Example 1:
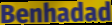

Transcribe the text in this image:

Benhadad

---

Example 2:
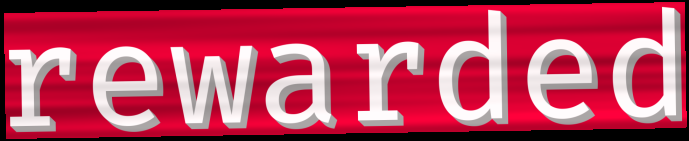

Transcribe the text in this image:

rewarded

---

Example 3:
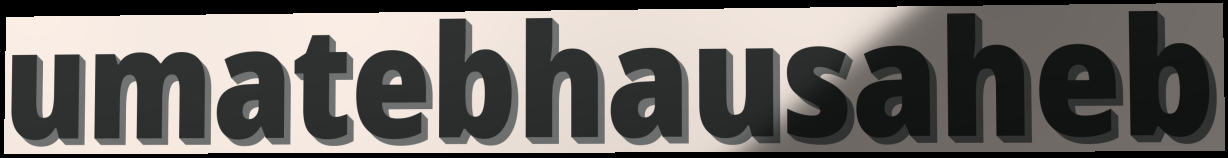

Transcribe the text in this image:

umatebhausaheb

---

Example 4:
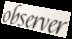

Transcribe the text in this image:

observer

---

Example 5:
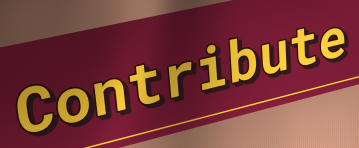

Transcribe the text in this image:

Contribute